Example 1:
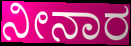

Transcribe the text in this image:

ನೀನಾರ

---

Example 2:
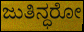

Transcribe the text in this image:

ಜುತಿನ್ಧರೋ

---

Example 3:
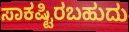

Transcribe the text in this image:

ಸಾಕಷ್ಟಿರಬಹುದು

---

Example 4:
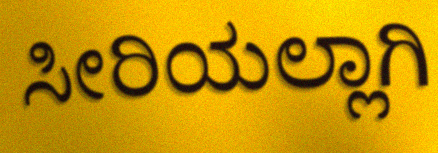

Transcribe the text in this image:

ಸೀರಿಯಲ್ಲಾಗಿ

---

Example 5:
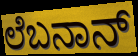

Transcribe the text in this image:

ಲೆಬನಾನ್